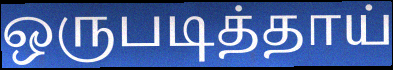
ஒருபடித்தாய்